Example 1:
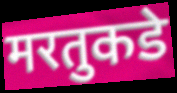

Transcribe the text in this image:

मरतुकडे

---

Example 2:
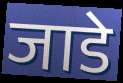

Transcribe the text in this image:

जाडे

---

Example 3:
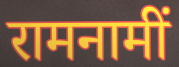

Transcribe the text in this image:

रामनामीं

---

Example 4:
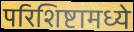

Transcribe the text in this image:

परिशिष्टामध्ये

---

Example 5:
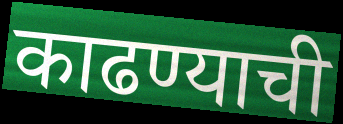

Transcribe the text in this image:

काढण्याची